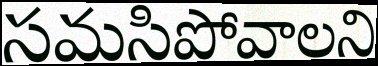
సమసిపోవాలని